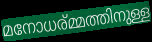
മനോധര്മ്മത്തിനുള്ള